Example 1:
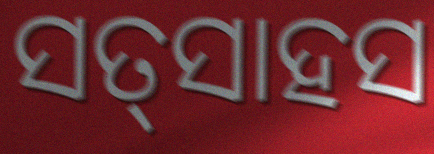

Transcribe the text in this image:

ସତ୍‍ସାହସ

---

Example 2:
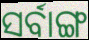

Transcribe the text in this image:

ସର୍ବାଙ୍ଗ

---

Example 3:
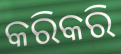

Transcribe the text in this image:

କରିକରି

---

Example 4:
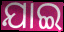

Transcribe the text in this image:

ଯାଇ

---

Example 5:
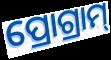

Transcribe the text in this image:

ପ୍ରୋଗ୍ରାମ୍